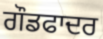
ਗੌਡਫਾਦਰ